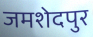
जमशेदपुर